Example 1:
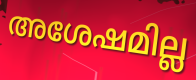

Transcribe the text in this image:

അശേഷമില്ല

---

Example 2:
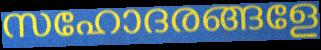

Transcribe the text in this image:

സഹോദരങ്ങളേ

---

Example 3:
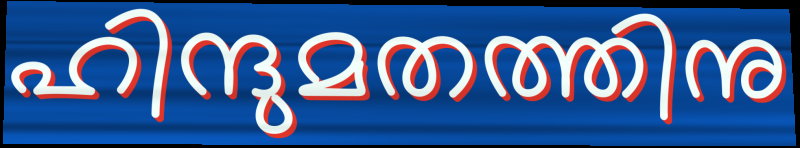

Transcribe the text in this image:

ഹിന്ദുമതത്തിനു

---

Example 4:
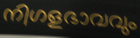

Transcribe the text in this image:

നിഗളഭാവവും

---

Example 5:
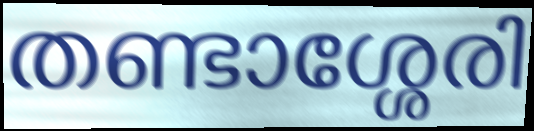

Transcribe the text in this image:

തണ്ടാശ്ശേരി